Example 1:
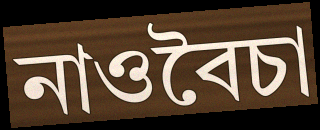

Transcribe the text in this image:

নাওবৈচা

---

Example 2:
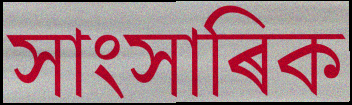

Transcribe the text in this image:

সাংসাৰিক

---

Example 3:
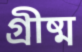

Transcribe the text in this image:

গ্ৰীষ্ম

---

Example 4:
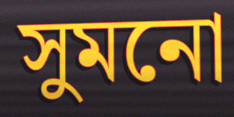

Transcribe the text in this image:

সুমনো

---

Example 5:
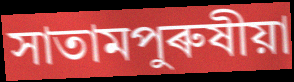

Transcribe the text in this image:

সাতামপুৰুষীয়া